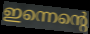
ഇന്നെന്റെ